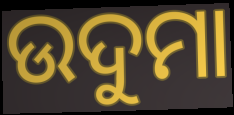
ଉଦୁମା